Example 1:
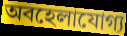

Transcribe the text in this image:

অবহেলাযোগ্য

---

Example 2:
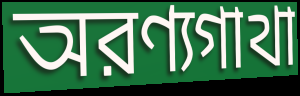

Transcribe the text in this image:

অরণ্যগাথা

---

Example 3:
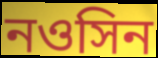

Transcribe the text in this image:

নওসিন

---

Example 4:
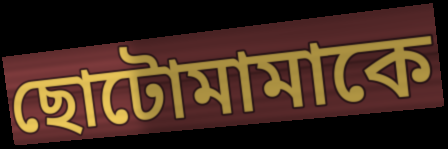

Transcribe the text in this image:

ছোটোমামাকে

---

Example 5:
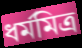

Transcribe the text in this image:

ধর্মমিত্র